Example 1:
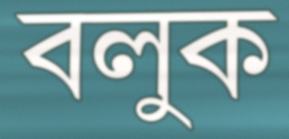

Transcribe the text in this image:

বলুক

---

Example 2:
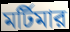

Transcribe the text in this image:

মর্টিমার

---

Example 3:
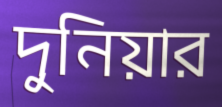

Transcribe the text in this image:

দুনিয়ার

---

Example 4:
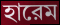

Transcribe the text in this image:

হারেম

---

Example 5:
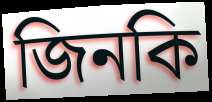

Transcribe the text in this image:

জিনকি